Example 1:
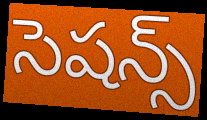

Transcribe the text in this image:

సెషన్స్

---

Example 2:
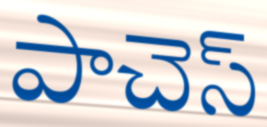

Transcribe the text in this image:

పాచెస్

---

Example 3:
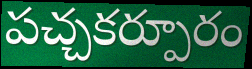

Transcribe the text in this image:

పచ్చకర్పూరం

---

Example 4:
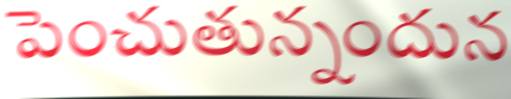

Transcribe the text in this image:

పెంచుతున్నందున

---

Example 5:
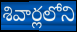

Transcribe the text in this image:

శివార్లలోని